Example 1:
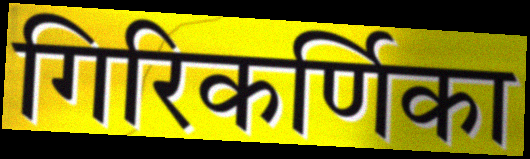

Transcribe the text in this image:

गिरिकर्णिका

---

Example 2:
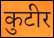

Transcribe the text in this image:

कुटीर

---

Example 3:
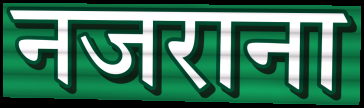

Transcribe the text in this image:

नजराना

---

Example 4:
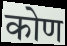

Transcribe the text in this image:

कोण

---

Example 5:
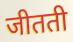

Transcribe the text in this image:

जीतती